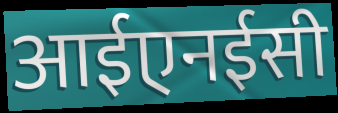
आईएनईसी